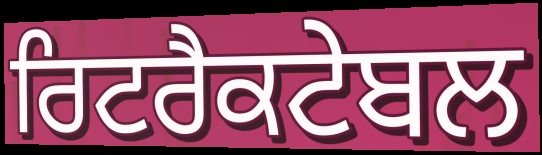
ਰਿਟਰੈਕਟੇਬਲ